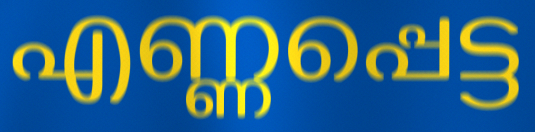
എണ്ണപ്പെട്ട